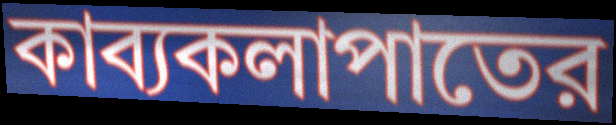
কাব্যকলাপাতের